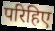
परिहिए